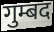
गुम्बद